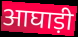
आघाड़ी